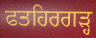
ਫਤਹਿਰਗੜ੍ਹ